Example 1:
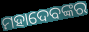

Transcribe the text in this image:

ମହାଦେବଙ୍କର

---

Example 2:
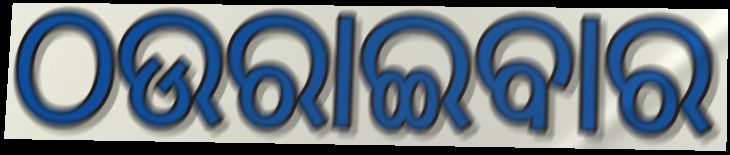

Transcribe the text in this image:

ଠଉରାଇବାର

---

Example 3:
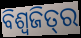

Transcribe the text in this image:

ବିଶ୍ୱଜିତ୍‌ର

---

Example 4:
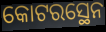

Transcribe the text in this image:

କୋଟରସ୍ଥେନ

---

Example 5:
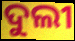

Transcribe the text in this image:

ଦୁଲୀ